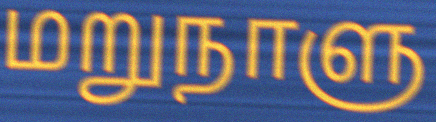
மறுநாளு